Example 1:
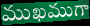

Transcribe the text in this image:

ముఖముగా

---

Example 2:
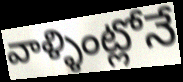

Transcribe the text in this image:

వాళ్ళింట్లోనే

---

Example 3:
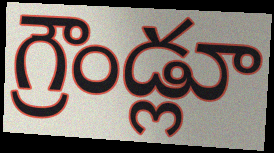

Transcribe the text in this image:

గ్రౌండ్లూ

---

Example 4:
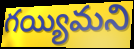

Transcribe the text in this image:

గయ్యిమని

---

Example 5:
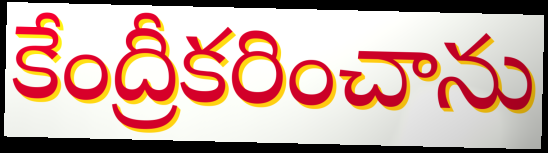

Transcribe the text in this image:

కేంద్రీకరించాను